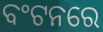
ବଂଟନରେ